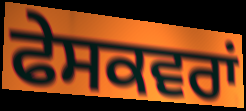
ਫੇਸਕਵਰਾਂ